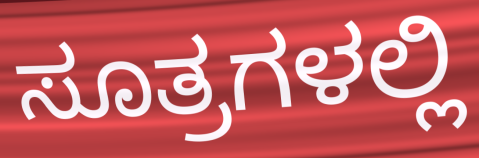
ಸೂತ್ರಗಳಲ್ಲಿ